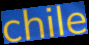
chile